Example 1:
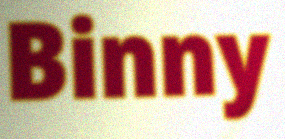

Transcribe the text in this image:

Binny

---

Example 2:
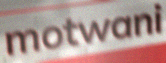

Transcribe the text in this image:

motwani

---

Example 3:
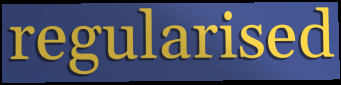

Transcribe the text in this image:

regularised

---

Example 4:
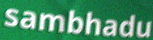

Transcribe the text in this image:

sambhadu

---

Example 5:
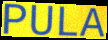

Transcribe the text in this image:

PULA